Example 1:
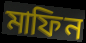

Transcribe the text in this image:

মাফিন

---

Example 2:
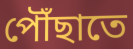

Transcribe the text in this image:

পৌঁছাতে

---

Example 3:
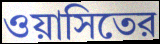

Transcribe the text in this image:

ওয়াসিতের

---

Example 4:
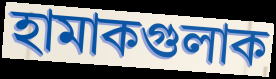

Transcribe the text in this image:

হামাকগুলাক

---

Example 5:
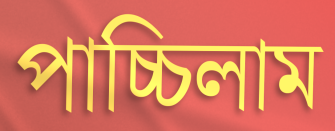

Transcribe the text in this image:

পাচ্চিলাম